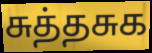
சுத்தசுக